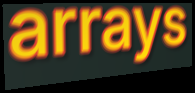
arrays